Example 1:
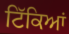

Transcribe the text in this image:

ਟਿੱਕਿਆਂ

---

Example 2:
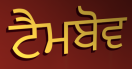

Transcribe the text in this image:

ਟੈਮਬੋਵ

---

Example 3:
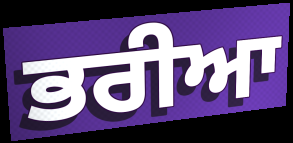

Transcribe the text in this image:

ਭਰੀਆ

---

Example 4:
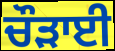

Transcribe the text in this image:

ਚੌੜਾਈ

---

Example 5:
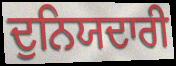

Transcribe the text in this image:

ਦੁਨਿਯਦਾਰੀ